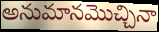
అనుమానమొచ్చినా